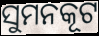
ସୁମନକୂଟ